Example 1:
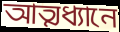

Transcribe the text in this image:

আত্মধ্যানে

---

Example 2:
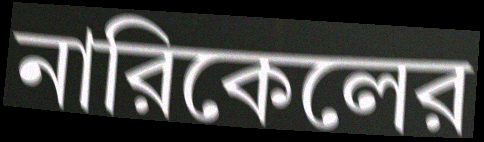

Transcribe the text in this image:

নারিকেলের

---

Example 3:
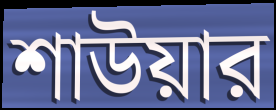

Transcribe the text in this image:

শাউয়ার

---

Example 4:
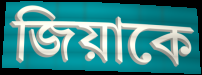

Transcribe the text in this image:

জিয়াকে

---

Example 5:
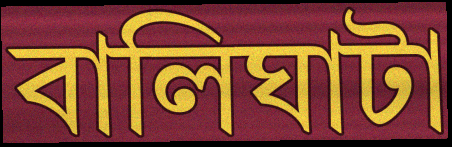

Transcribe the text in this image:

বালিঘাটা